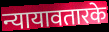
न्यायावतारके